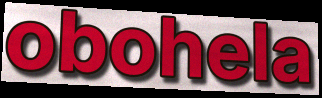
obohela